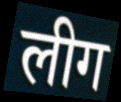
लीग